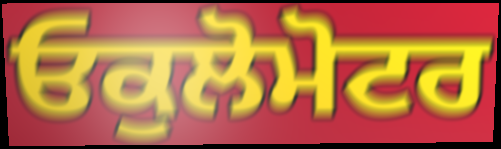
ਓਕੁਲੋਮੋਟਰ